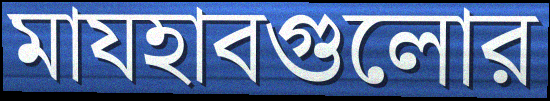
মাযহাবগুলোর